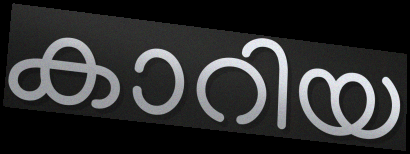
കാറിയ